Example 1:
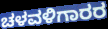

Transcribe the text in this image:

ಚಳವಳಿಗಾರರ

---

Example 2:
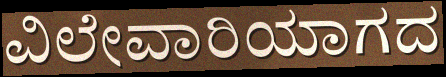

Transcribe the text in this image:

ವಿಲೇವಾರಿಯಾಗದ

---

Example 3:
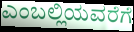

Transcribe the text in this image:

ಎಂಬಲ್ಲಿಯವರೆಗೆ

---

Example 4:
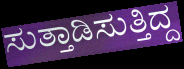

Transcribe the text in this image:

ಸುತ್ತಾಡಿಸುತ್ತಿದ್ದ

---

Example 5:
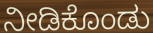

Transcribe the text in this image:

ನೀಡಿಕೊಂಡು